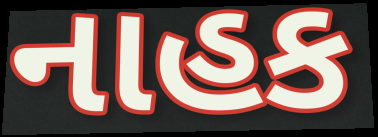
નાહક